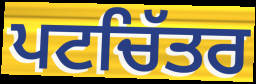
ਪਟਚਿੱਤਰ